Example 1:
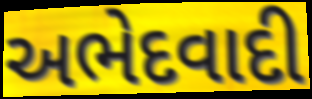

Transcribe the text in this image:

અભેદવાદી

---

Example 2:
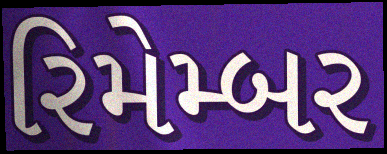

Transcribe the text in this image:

રિમેમ્બર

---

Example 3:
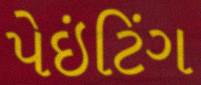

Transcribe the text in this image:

પેઇંટિંગ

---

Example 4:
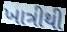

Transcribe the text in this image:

ખાત્રીથી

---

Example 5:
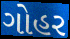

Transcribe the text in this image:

ગોહર